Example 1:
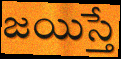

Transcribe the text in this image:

జయిస్తే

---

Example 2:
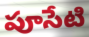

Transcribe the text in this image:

పూసేటి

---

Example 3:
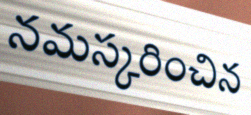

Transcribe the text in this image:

నమస్కరించిన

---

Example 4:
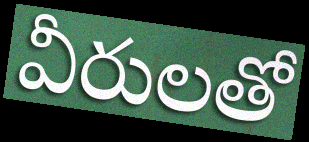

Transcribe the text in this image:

వీరులతో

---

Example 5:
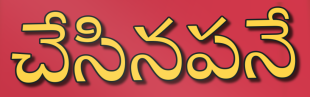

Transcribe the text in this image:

చేసినపనే